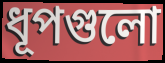
ধূপগুলো